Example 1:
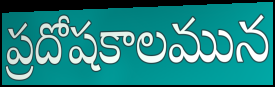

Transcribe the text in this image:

ప్రదోషకాలమున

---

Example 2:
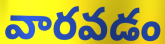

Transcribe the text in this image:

వారవడం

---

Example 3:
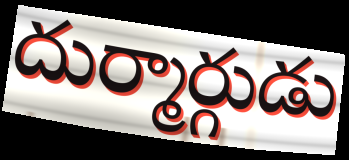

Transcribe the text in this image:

దుర్మార్గుడు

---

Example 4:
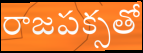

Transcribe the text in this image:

రాజపక్సతో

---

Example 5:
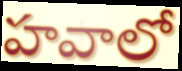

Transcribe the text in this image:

హవాలో